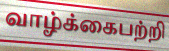
வாழ்க்கைபற்றி